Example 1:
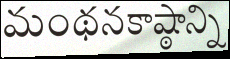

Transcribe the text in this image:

మంథనకాష్ఠాన్ని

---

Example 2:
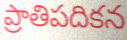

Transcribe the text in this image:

ప్రాతిపదికన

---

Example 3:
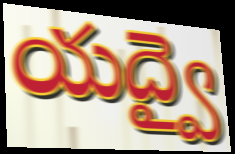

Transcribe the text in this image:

యద్వై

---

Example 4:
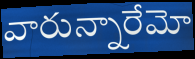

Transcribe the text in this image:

వారున్నారేమో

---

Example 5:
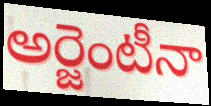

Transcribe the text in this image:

అర్జెంటీనా